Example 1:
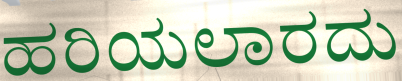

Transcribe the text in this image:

ಹರಿಯಲಾರದು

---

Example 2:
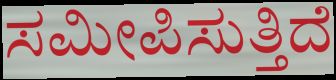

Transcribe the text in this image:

ಸಮೀಪಿಸುತ್ತಿದೆ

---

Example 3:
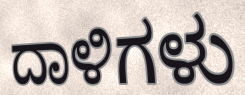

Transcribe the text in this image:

ದಾಳಿಗಳು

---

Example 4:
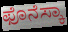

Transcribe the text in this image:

ಫೊನೆಸ್ಕಾ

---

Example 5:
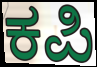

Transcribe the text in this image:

ಕಪಿ